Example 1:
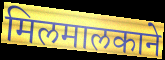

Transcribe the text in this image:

मिलमालकाने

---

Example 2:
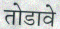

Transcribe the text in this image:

तोडावे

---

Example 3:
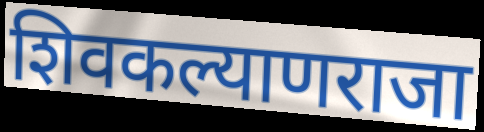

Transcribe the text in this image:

शिवकल्याणराजा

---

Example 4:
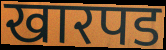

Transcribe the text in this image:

खारपड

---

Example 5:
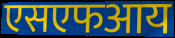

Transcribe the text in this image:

एसएफआय